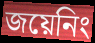
জয়েনিং